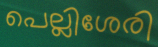
പെല്ലിശേരി